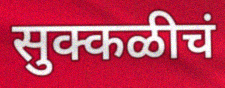
सुक्कळीचं